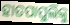
ହାତପାପୁଲିକୁ